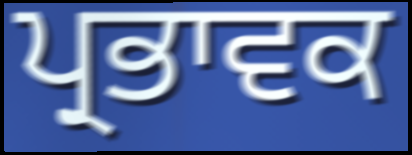
ਪ੍ਰਭਾਵਕ